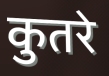
कुतरे